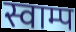
स्वाम्प